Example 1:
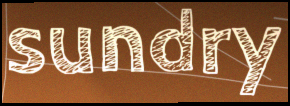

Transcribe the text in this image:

sundry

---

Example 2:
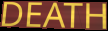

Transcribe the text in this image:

DEATH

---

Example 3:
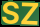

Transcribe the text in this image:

SZ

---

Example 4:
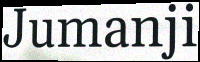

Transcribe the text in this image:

Jumanji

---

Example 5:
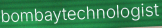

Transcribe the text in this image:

bombaytechnologist